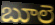
బూలె